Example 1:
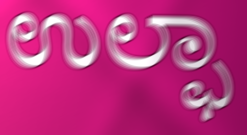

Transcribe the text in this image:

ಉಲ್ಫಾ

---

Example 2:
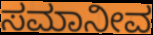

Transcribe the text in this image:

ಸಮಾನೀವ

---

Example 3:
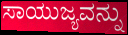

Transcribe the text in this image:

ಸಾಯುಜ್ಯವನ್ನು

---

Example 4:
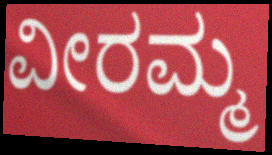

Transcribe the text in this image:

ವೀರಮ್ಮ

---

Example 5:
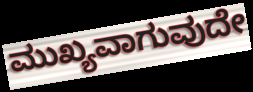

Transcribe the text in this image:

ಮುಖ್ಯವಾಗುವುದೇ